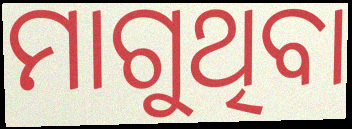
ମାଗୁଥିବା